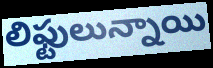
లిఫ్టులున్నాయి